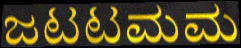
ಜಟಟಮಮ